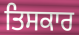
ਤਿਸਕਾਰ